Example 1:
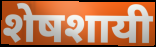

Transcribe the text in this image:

शेषशायी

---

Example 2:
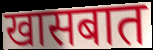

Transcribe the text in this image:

खासबात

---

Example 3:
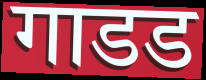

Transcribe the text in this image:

गाडड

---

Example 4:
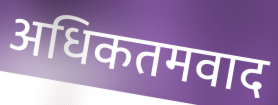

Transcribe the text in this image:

अधिकतमवाद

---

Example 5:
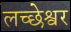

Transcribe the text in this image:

लच्छेश्वर